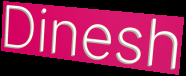
Dinesh